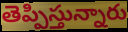
తెప్పిస్తున్నారు